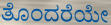
ತೊಂದರೆಯೇ